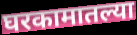
घरकामातल्या